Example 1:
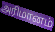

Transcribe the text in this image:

அரிமானம்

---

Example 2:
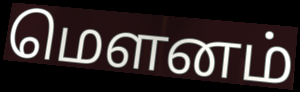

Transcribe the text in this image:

மெளனம்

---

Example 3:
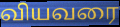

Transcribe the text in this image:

வியவரை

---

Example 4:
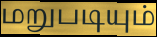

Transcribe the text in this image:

மறுபடியும்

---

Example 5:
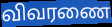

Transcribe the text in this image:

விவரணை